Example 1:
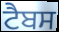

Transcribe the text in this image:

ਟੈਬਸ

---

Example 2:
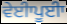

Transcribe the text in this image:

ਵੇਈਾਪੂਈਾ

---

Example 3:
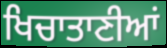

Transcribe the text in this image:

ਖਿਚਾਤਾਣੀਆਂ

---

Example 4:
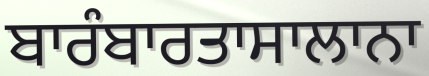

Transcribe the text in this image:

ਬਾਰੰਬਾਰਤਾਸਾਲਾਨਾ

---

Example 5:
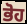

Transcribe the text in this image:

ਭੋਹ